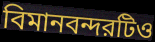
বিমানবন্দরটিও